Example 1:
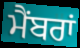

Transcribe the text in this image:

ਮੈਂਬਰਾਂ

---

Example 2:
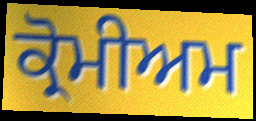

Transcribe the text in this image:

ਕ੍ਰੋਮੀਅਮ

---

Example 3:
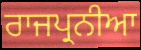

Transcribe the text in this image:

ਰਾਜਪ੍ਰਨੀਆ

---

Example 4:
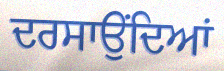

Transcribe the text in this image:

ਦਰਸਾਉਂਦਿਆਂ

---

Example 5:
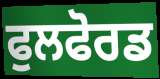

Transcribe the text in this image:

ਫੁਲਫੋਰਡ